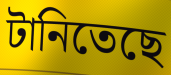
টানিতেছে